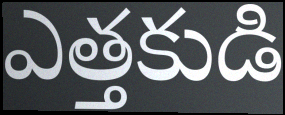
ఎత్తకుడి